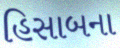
હિસાબના